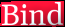
Bind